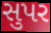
સુપર